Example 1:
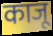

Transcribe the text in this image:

काजू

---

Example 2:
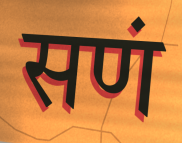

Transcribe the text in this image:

सणं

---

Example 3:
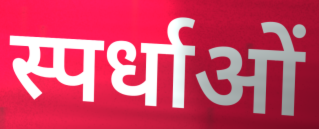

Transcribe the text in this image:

स्पर्धाओं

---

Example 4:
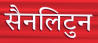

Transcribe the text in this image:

सैनलिटुन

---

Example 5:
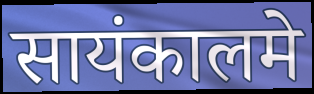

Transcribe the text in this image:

सायंकालमे